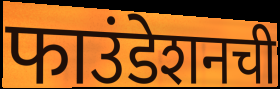
फाउंडेशनची